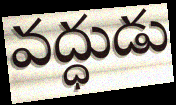
వద్ధుడు